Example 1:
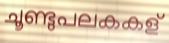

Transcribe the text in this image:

ചൂണ്ടുപലകകള്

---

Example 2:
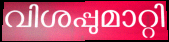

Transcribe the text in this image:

വിശപ്പുമാറ്റി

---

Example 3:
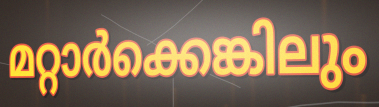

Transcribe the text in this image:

മറ്റാർക്കെങ്കിലും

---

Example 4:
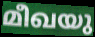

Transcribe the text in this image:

മീഖയു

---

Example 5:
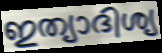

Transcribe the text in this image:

ഇത്യാദിശ്യ